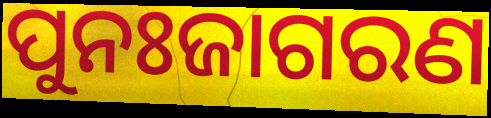
ପୁନଃଜାଗରଣ